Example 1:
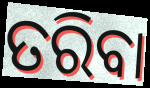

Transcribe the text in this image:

ତରିବା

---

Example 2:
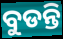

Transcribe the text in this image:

ବୁଡନ୍ତି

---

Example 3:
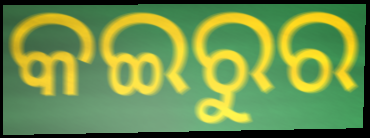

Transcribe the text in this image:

କଇରୁର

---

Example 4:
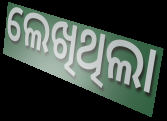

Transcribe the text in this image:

ଲେଖିଥିଲା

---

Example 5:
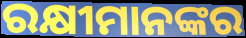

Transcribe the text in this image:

ରକ୍ଷୀମାନଙ୍କର